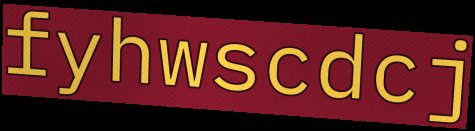
fyhwscdcj